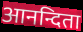
आनन्दिता